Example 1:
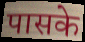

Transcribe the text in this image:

पासके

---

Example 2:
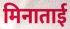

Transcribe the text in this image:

मिनाताई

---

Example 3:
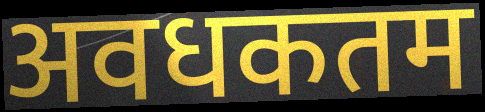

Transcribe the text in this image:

अवधकतम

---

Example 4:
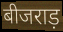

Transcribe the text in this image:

बीजराड़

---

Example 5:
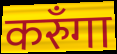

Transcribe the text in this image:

करुँगा